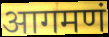
आगमणं